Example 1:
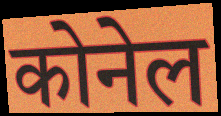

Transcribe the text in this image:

कोनेल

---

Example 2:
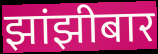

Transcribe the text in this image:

झांझीबार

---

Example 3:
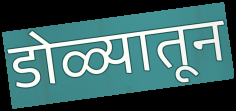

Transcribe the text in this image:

डोळ्यातून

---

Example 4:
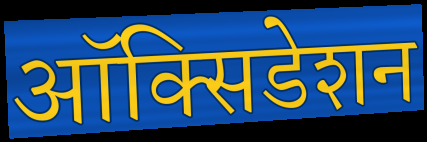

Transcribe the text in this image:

ऑक्सिडेशन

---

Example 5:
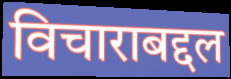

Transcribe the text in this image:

विचाराबद्दल